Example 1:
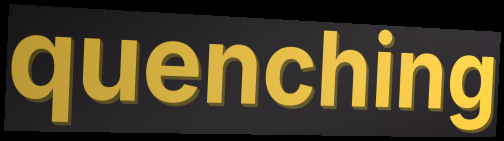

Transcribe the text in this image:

quenching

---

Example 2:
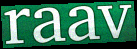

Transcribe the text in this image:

raav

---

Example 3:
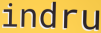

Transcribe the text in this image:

indru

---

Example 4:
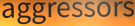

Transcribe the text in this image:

aggressors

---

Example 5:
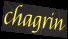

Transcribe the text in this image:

chagrin